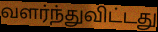
வளர்ந்துவிட்டது